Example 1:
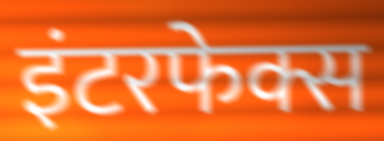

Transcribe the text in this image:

इंटरफेक्स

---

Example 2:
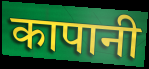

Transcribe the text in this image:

कापानी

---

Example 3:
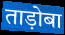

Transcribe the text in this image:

ताड़ोबा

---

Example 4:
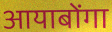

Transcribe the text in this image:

आयाबोंगा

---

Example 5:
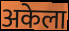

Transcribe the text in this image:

अकेला